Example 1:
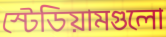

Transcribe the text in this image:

স্টেডিয়ামগুলো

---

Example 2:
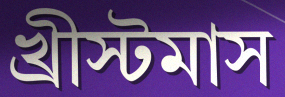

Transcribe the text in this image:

খ্রীস্টমাস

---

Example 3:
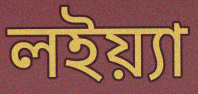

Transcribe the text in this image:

লইয়্যা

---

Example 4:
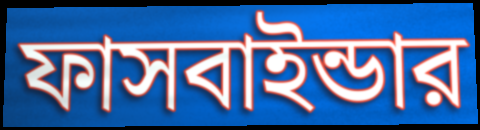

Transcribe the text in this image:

ফাসবাইন্ডার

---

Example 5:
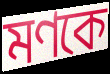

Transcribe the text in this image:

মণকে